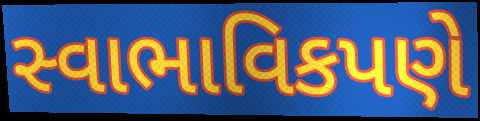
સ્વાભાવિકપણે